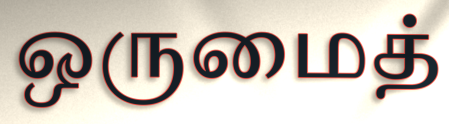
ஒருமைத்